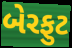
બેરફુટ